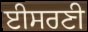
ਈਸਰਣੀ